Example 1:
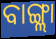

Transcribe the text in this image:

ବାଙ୍ଗ୍ଲା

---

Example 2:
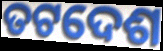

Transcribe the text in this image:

ତଟଦେଶ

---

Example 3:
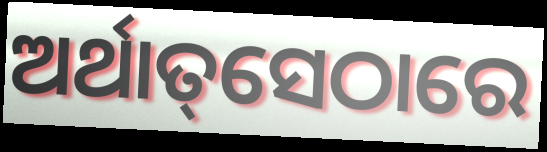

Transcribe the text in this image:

ଅର୍ଥାତ୍‌ସେଠାରେ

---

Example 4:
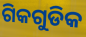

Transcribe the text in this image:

ଗିକଗୁଡିକ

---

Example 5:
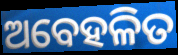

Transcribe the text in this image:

ଅବେହଳିତ